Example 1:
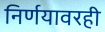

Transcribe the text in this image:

निर्णयावरही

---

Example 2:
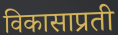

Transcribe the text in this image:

विकासाप्रती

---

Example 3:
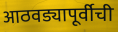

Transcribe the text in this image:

आठवड्यापूर्वीची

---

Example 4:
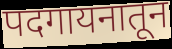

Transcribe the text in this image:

पदगायनातून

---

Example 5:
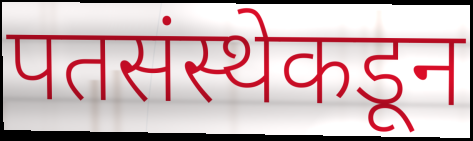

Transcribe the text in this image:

पतसंस्थेकडून